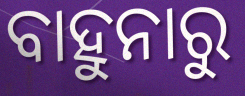
ବାହୁନାରୁ